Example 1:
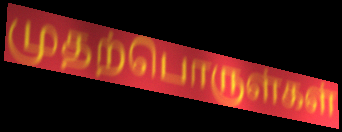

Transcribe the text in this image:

முதற்பொருள்கள்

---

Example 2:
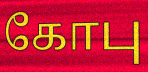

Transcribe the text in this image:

கோபு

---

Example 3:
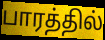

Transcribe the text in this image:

பாரத்தில்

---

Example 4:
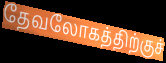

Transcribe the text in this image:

தேவலோகத்திற்குச்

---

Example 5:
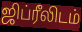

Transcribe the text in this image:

ஜிப்ரீலிடம்